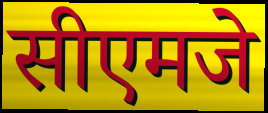
सीएमजे